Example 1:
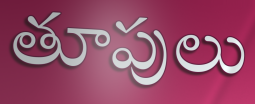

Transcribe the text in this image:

తూపులు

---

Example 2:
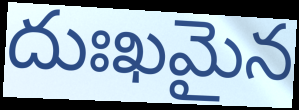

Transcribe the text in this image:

దుఃఖమైన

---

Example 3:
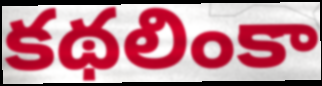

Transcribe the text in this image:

కథలింకా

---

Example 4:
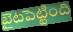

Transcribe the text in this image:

బైటపెట్టింది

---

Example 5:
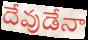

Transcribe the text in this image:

దేవుడేనా